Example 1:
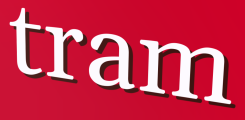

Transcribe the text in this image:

tram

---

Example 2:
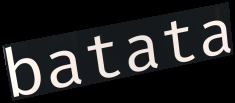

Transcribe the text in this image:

batata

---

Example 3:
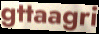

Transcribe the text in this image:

gttaagri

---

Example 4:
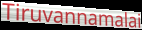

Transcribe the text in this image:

Tiruvannamalai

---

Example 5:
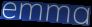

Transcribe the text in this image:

emma